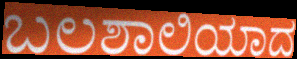
ಬಲಶಾಲಿಯಾದ